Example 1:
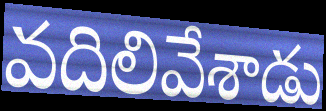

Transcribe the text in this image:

వదిలివేశాడు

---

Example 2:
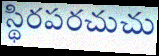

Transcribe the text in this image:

స్థిరపరచుచు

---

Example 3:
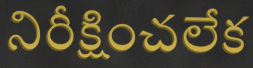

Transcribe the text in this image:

నిరీక్షించలేక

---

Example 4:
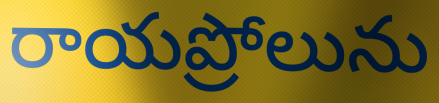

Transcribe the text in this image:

రాయప్రోలును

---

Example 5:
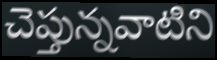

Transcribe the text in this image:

చెప్తున్నవాటిని